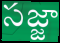
సజ్జా